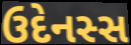
ઉદેનસ્સ